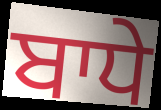
ਬਾਧੇ